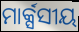
ମାର୍କ୍ସସୀୟ